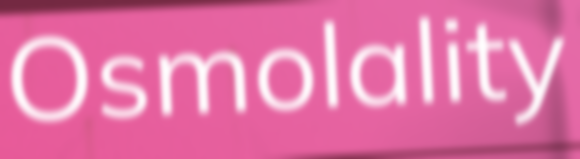
Osmolality